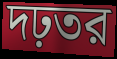
দঢ়তর